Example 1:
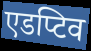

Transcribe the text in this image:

एडप्टिव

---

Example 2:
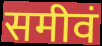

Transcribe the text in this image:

समीवं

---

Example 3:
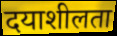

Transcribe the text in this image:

दयाशीलता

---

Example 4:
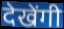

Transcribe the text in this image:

देखेंगी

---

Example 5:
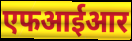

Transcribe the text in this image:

एफआईआर